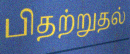
பிதற்றுதல்